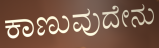
ಕಾಣುವುದೇನು